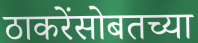
ठाकरेंसोबतच्या